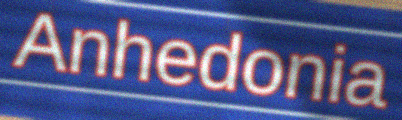
Anhedonia